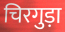
चिरगुड़ा